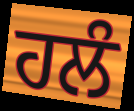
ਹਲੰ